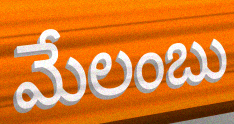
మేలంబు